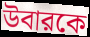
উবারকে